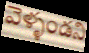
వెళ్ళండని